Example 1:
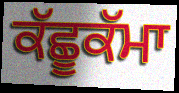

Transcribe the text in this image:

ਕੱਛੂਕੱਮਾ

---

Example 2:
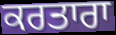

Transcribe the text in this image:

ਕਰਤਾਰਾ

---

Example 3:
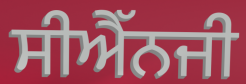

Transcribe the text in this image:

ਸੀਐੱਨਜੀ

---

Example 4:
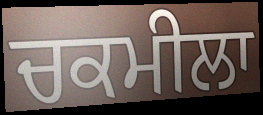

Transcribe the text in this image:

ਚਕਮੀਲਾ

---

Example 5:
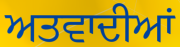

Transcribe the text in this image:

ਅਤਵਾਦੀਆਂ